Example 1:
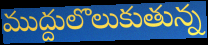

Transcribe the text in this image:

ముద్దులొలుకుతున్న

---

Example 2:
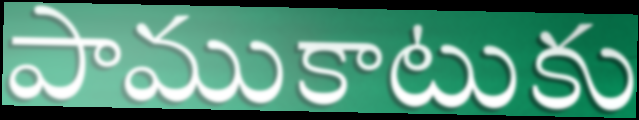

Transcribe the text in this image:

పాముకాటుకు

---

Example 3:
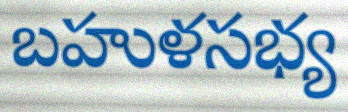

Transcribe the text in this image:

బహుళసభ్య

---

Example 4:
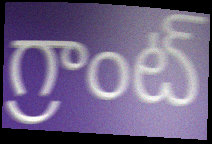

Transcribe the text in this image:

గ్రాంట్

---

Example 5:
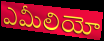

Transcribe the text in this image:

ఎమీలియో